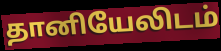
தானியேலிடம்